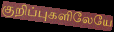
குறிப்புகளிலேயே